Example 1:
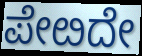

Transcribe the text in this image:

ಪೇೞದೇ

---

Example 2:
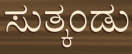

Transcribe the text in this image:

ಸುತ್ಕಂಡು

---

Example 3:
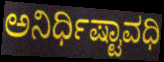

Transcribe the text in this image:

ಅನಿರ್ಧಿಷ್ಟಾವಧಿ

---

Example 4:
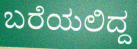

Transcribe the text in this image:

ಬರೆಯಲಿದ್ದ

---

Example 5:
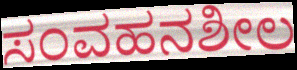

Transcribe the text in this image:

ಸಂವಹನಶೀಲ